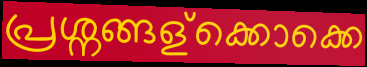
പ്രശ്നങ്ങള്ക്കൊക്കെ